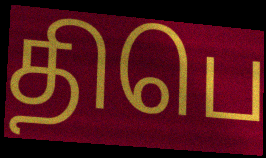
திபெ